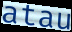
atau